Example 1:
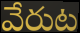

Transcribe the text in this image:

వేరుట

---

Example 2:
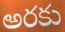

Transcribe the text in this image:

అరకు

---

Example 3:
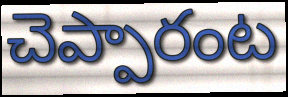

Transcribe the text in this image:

చెప్పారంట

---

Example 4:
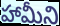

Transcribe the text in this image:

హామీని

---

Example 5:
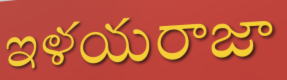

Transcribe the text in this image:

ఇళయరాజా